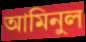
আমিনুল